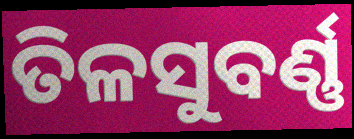
ତିଳସୁବର୍ଣ୍ଣ